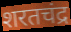
शरतचंद्र